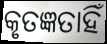
କୃତଜ୍ଞତାହିଁ